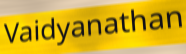
Vaidyanathan